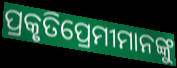
ପ୍ରକୃତିପ୍ରେମୀମାନଙ୍କୁ